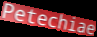
Petechiae